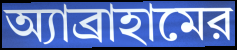
অ্যাব্রাহামের